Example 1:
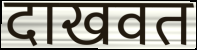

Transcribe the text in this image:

दाखवत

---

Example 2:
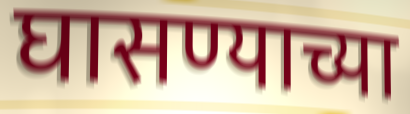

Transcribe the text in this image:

घासण्याच्या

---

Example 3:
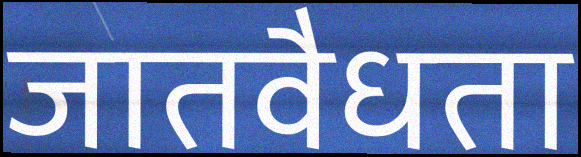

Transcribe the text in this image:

जातवैधता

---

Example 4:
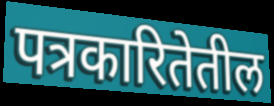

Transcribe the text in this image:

पत्रकारितेतील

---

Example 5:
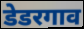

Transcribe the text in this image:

डेडरगाव